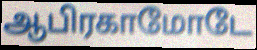
ஆபிரகாமோடே